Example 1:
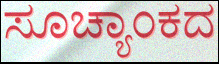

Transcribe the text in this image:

ಸೂಚ್ಯಾಂಕದ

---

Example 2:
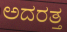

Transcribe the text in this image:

ಅದರತ್ತ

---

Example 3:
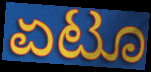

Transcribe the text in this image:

ಏಟೂ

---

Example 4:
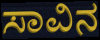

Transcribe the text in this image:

ಸಾವಿನ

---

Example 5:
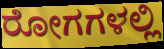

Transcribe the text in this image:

ರೋಗಗಳಲ್ಲಿ